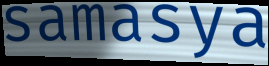
samasya